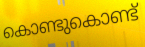
കൊണ്ടുകൊണ്ട്